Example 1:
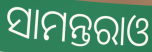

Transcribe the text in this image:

ସାମନ୍ତରାଓ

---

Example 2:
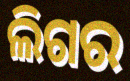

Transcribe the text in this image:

ଲିଗର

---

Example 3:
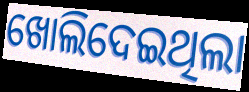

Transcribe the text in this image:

ଖୋଲିଦେଇଥିଲା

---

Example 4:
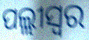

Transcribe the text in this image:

ପଲ୍ଲୀସ୍ଵର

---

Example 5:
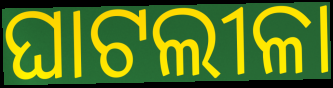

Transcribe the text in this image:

ଘାଟଲୀଳା